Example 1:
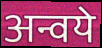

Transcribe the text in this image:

अन्वये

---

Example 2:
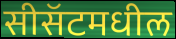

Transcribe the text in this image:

सीसॅटमधील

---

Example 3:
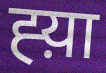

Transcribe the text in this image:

ह्य़ा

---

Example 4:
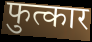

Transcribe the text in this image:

फुत्कार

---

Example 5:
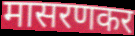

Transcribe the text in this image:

मासरणकर